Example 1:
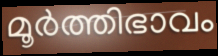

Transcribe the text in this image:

മൂർത്തിഭാവം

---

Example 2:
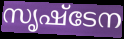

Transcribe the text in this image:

സൃഷ്ടേന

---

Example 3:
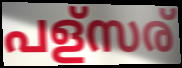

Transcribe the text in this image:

പള്സര്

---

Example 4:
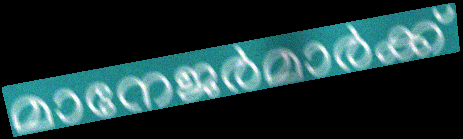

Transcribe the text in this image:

മാനേജർമാർക്ക്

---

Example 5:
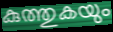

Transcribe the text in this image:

കുത്തുകയും